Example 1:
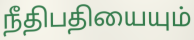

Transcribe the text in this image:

நீதிபதியையும்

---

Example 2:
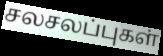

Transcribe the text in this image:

சலசலப்புகள்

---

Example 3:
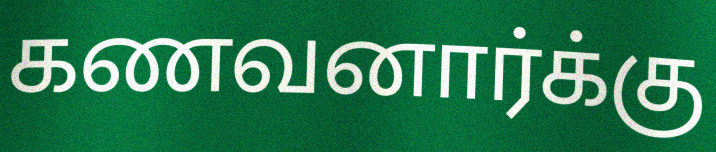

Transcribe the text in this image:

கணவனார்க்கு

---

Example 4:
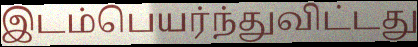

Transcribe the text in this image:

இடம்பெயர்ந்துவிட்டது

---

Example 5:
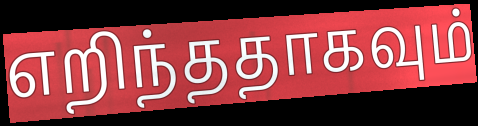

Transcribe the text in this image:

எறிந்ததாகவும்